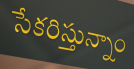
సేకరిస్తున్నాం